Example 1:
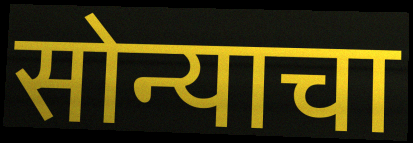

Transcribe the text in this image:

सोन्याचा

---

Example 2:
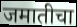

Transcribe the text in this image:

जमातीचा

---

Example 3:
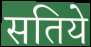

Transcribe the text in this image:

सतिये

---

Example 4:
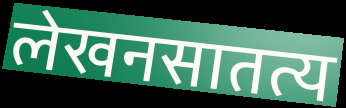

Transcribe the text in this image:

लेखनसातत्य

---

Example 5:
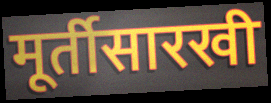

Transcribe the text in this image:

मूर्तीसारखी